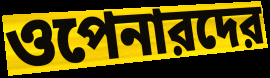
ওপেনারদের